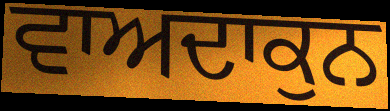
ਵਾਅਦਾਕੁਨ